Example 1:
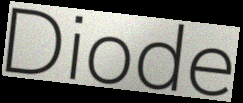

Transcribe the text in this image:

Diode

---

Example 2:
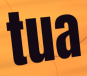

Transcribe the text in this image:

tua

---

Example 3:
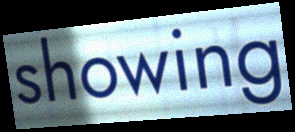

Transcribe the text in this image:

showing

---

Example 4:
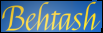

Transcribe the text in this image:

Behtash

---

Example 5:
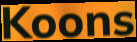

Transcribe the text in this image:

Koons